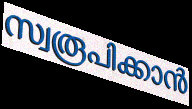
സ്വരൂപിക്കാൻ